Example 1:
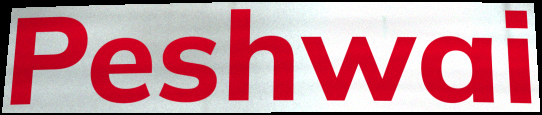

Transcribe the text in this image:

Peshwai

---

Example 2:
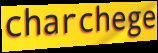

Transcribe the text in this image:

charchege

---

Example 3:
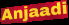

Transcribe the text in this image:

Anjaadi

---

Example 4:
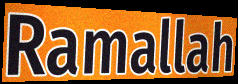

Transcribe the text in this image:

Ramallah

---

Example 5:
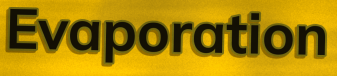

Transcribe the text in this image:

Evaporation